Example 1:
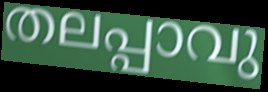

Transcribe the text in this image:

തലപ്പാവു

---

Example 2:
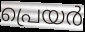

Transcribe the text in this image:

പ്രെയർ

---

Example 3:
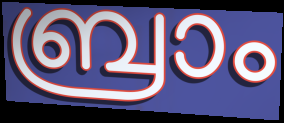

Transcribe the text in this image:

ബ്രാം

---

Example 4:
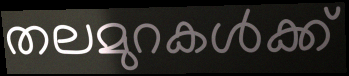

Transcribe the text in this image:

തലമുറകൾക്ക്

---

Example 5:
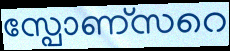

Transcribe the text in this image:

സ്പോണ്സറെ